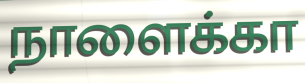
நாளைக்கா